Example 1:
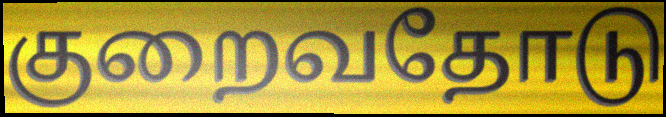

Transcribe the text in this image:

குறைவதோடு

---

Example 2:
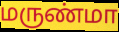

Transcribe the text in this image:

மருண்மா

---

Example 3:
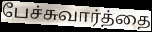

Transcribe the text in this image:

பேச்சுவார்த்தை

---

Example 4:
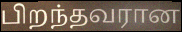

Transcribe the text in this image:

பிறந்தவரான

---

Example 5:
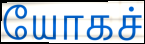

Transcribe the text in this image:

யோகச்